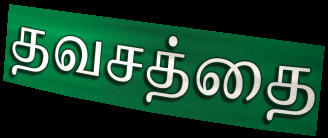
தவசத்தை